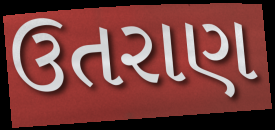
ઉતરાણ